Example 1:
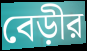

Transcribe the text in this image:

বেড়ীর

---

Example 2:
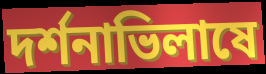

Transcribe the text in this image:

দর্শনাভিলাষে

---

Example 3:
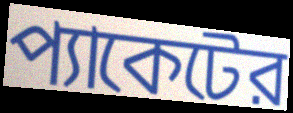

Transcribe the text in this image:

প্যাকেটের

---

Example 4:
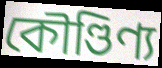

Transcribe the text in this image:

কৌণ্ডিণ্য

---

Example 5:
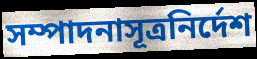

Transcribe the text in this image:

সম্পাদনাসূত্রনির্দেশ